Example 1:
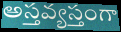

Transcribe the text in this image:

అస్తవ్యస్తంగా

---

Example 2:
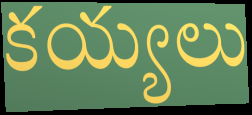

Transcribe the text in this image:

కయ్యలు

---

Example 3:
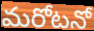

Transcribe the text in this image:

మరోటనో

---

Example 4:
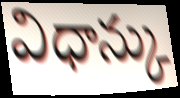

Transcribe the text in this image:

విధాన్కు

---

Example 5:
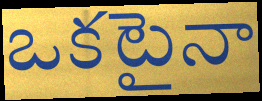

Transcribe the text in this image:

ఒకటైనా